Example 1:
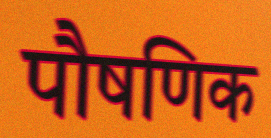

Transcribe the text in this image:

पौषणिक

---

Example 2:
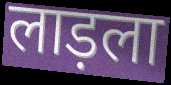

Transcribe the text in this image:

लाड़ला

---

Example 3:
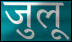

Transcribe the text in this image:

जुलू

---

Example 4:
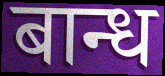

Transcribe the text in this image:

बान्ध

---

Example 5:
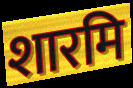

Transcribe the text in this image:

शारमि